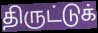
திருட்டுக்